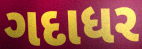
ગદાધર